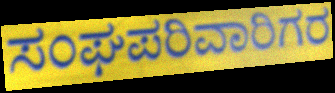
ಸಂಘಪರಿವಾರಿಗರ